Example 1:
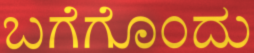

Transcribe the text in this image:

ಬಗೆಗೊಂದು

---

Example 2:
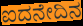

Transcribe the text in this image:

ಐದನೇದಿನ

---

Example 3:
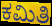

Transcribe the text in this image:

ಕಮಿತಿ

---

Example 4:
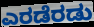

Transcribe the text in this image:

ಎರಡೆರಡು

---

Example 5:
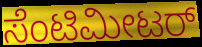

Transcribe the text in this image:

ಸೆಂಟಿಮೀಟರ್